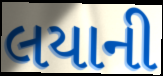
લયાની